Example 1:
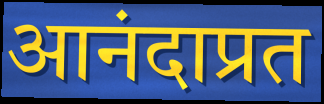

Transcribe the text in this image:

आनंदाप्रत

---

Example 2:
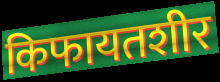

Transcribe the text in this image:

किफायतशीर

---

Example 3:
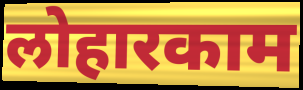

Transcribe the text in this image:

लोहारकाम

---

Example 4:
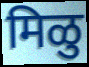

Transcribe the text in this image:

मिळु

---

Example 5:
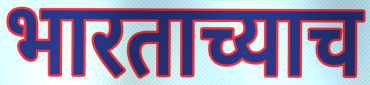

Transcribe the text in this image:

भारताच्याच